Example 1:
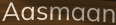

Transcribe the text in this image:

Aasmaan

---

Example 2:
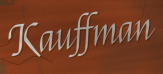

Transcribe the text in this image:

Kauffman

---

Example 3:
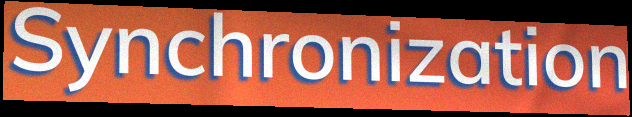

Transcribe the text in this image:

Synchronization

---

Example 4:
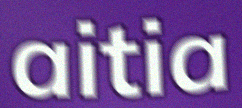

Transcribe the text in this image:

aitia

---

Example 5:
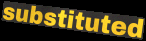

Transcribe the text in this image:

substituted